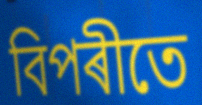
বিপৰীতে